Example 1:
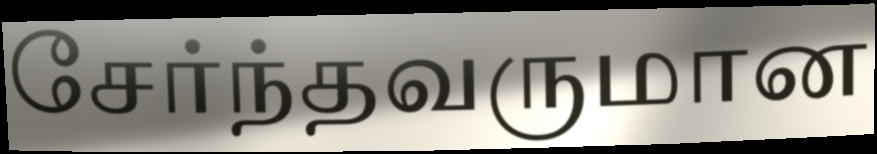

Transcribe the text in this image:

சேர்ந்தவருமான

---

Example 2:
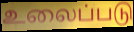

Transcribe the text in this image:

உலைப்படு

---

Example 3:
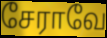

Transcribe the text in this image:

சேராவே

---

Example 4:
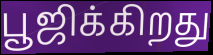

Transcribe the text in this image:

பூஜிக்கிறது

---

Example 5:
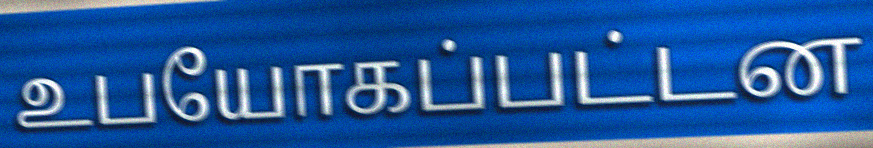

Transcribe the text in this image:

உபயோகப்பட்டன